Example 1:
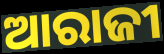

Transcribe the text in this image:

ଆରାଜୀ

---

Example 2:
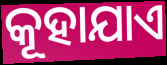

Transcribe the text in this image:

କୂହାଯାଏ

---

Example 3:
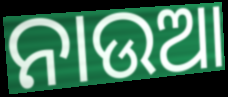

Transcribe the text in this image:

ନାଉଆ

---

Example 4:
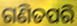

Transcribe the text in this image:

ଗଣିତପରି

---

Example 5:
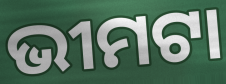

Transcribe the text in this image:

ଭୀମଟା